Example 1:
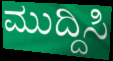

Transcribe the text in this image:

ಮುದ್ದಿಸಿ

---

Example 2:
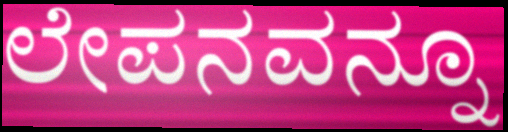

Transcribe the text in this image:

ಲೇಪನವನ್ನೂ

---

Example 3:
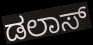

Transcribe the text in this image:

ಡಲಾಸ್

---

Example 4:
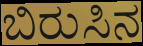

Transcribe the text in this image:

ಬಿರುಸಿನ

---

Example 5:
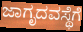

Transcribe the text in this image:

ಜಾಗೃದವಸ್ಥೆಗೆ